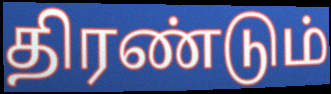
திரண்டும்